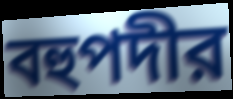
বহুপদীর